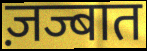
ज़ज्बात